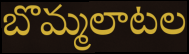
బొమ్మలాటల